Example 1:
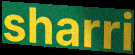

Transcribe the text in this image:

sharri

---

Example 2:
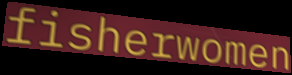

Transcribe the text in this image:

fisherwomen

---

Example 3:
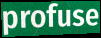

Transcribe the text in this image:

profuse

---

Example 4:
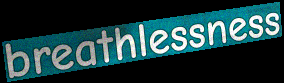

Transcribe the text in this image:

breathlessness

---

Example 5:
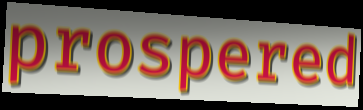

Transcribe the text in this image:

prospered